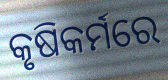
କୃଷିକର୍ମରେ